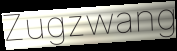
Zugzwang